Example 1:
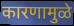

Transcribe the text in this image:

कारणामुळे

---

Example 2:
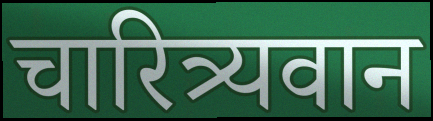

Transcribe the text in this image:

चारित्र्यवान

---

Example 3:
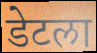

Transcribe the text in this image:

डेटला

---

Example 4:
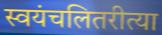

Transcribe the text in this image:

स्वयंचलितरीत्या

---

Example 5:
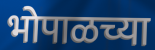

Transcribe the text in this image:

भोपाळच्या